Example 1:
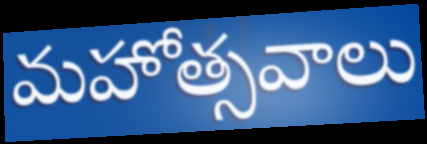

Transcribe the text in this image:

మహోత్సవాలు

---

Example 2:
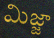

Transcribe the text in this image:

మిజ్జా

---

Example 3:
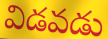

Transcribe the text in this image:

విడవడు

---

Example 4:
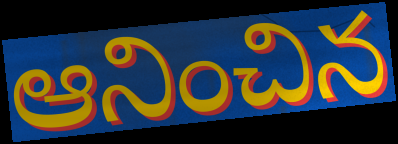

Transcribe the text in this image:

ఆనించిన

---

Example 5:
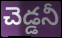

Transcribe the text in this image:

చెడ్డనీ